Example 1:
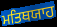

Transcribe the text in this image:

ਮਤਿਥਯਾਹ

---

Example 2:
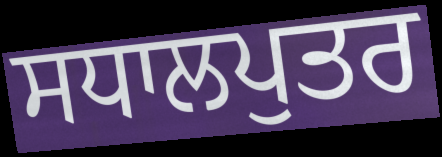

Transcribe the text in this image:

ਸਧਾਲਪੁਤਰ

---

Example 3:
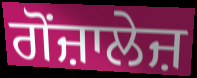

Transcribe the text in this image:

ਗੋਂਜ਼ਾਲੇਜ਼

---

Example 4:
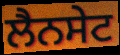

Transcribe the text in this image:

ਲੈਨਸੇਟ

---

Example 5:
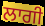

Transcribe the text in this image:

ਲਾਗੀ